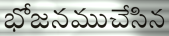
భోజనముచేసిన